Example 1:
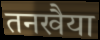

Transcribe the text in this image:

तनखैया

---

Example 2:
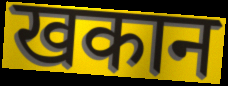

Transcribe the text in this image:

खकान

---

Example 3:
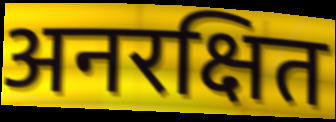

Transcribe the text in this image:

अनरक्षित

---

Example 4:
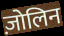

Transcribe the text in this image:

ज़ोलिन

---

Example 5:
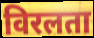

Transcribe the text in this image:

विरलता